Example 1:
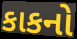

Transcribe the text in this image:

કાકનો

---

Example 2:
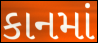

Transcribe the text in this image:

કાનમાં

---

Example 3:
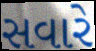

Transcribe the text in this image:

સવારે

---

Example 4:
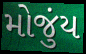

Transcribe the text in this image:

મોજુંય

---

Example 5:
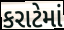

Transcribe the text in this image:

કરાટેમાં